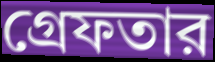
গ্রেফতার